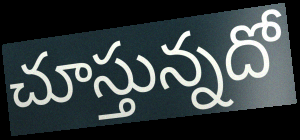
చూస్తున్నదో